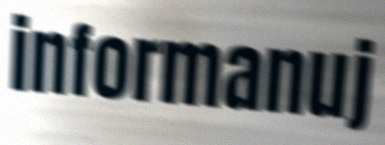
informanuj